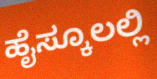
ಹೈಸ್ಕೂಲಲ್ಲಿ